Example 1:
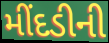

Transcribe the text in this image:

મીંદડીની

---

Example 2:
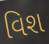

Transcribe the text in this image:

વિશ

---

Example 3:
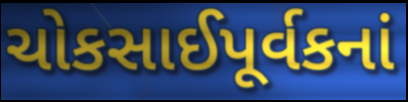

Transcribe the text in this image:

ચોકસાઈપૂર્વકનાં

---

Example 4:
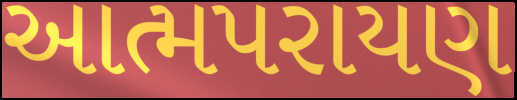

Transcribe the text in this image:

આત્મપરાયણ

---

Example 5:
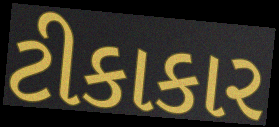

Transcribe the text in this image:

ટીકાકાર